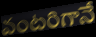
వంటరిగానే